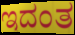
ಇದಂತ